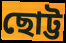
ছোট্ট